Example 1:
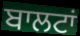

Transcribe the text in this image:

ਬਾਲਟਾਂ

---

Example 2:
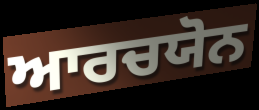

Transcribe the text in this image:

ਆਰਚਯੋਨ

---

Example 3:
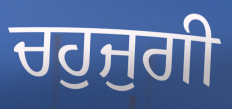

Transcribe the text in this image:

ਚਹੁਜੁਗੀ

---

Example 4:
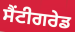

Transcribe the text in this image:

ਸੈਂਟੀਗਰੇਡ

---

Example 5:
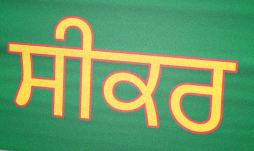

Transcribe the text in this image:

ਸੀਕਰ